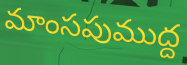
మాంసపుముద్ద